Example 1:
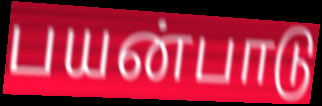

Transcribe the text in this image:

பயன்பாடு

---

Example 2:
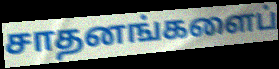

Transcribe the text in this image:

சாதனங்களைப்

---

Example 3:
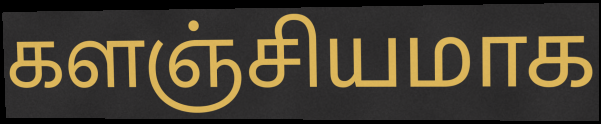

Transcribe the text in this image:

களஞ்சியமாக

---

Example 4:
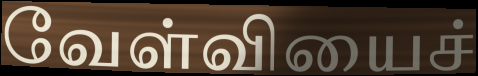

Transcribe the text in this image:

வேள்வியைச்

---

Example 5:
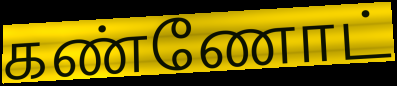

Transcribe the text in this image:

கண்ணோட்